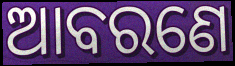
ଆବରଣେ